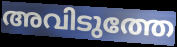
അവിടുത്തേ